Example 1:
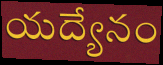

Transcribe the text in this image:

యద్యేనం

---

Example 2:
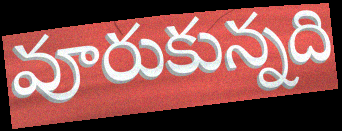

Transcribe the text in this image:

వూరుకున్నది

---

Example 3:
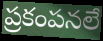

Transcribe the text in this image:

ప్రకంపనలే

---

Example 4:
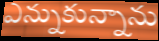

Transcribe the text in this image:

ఎన్నుకున్నాను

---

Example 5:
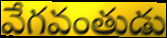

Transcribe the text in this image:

వేగవంతుడు